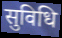
सुविधि